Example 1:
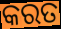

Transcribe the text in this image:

କରତ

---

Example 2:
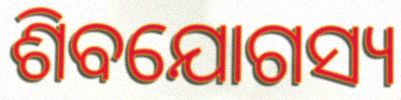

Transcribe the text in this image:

ଶିବଯୋଗସ୍ୟ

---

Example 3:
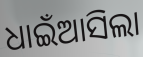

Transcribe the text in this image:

ଧାଇଁଆସିଲା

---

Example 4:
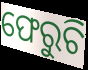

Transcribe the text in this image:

ଫେରୁଚି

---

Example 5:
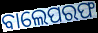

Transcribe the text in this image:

ବାଲେପରଫ